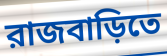
রাজবাড়িতে